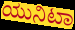
ಯುನಿಟಾ